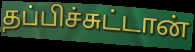
தப்பிச்சுட்டான்